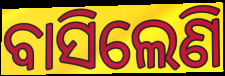
ବାସିଲେଣି